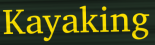
Kayaking